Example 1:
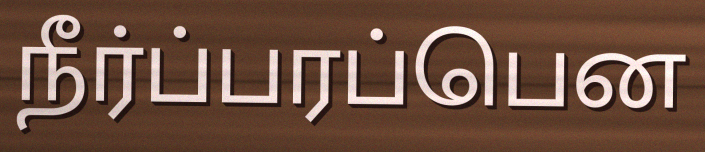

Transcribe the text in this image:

நீர்ப்பரப்பென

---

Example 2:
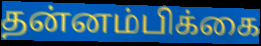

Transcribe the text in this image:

தன்னம்பிக்கை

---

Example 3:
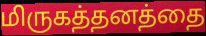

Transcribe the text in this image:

மிருகத்தனத்தை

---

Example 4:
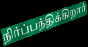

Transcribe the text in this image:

நிர்ப்பந்திக்கிறார்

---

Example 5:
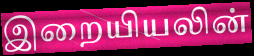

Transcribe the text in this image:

இறையியலின்